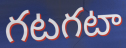
గటగటా